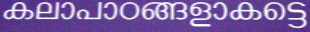
കലാപാഠങ്ങളാകട്ടെ